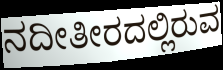
ನದೀತೀರದಲ್ಲಿರುವ